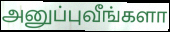
அனுப்புவீங்களா